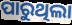
ପାରୁଥିଲା